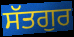
ਸੱਤਗੁਰ